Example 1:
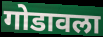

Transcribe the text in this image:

गोडावला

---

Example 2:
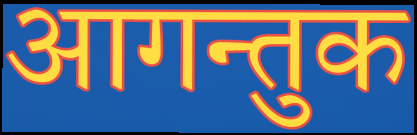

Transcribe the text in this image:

आगन्तुक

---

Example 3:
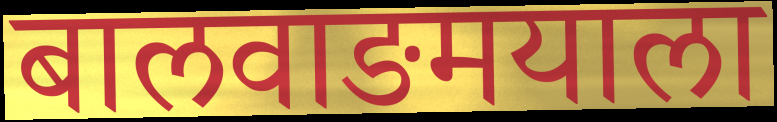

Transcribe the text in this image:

बालवाङमयाला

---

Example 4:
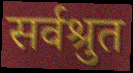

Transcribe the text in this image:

सर्वश्रुत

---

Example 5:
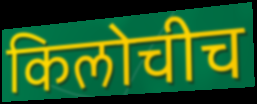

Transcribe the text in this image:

किलोचीच